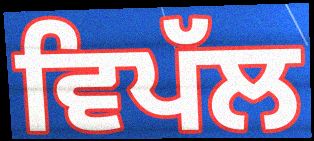
ਵਿਪੱਲ